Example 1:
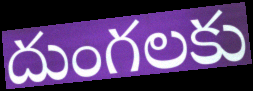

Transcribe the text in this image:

దుంగలకు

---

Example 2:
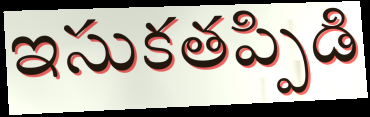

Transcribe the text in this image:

ఇసుకతప్పిడి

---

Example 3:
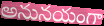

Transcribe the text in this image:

అనునయంగా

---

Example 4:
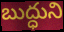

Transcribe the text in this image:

బుద్ధుని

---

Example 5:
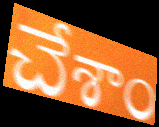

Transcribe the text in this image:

చేశాం